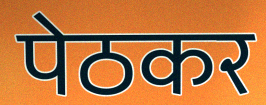
पेठकर